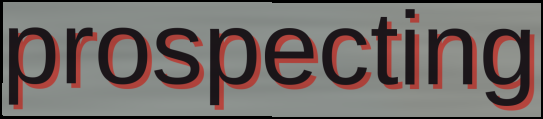
prospecting